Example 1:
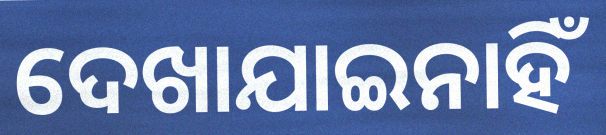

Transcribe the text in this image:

ଦେଖାଯାଇନାହିଁ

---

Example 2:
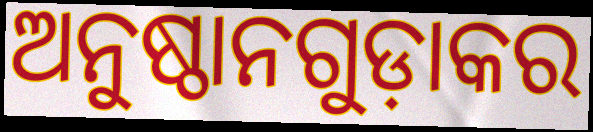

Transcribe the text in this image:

ଅନୁଷ୍ଠାନଗୁଡ଼ାକର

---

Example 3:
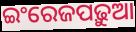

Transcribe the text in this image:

ଇଂରେଜପଢ଼ୁଆ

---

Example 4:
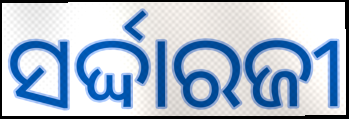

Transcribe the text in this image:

ସର୍ଦ୍ଦାରଜୀ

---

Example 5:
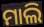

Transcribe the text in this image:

ମାଲି